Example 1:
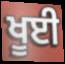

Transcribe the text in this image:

ਖੂਈ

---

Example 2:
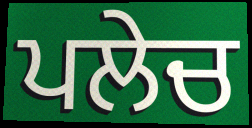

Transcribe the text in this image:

ਪਲੇਚ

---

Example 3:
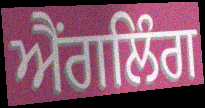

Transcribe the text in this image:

ਐਂਗਲਿੰਗ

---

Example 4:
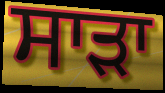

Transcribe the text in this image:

ਸਾੜਾ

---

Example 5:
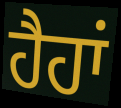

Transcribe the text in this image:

ਹੈਹਾਂ